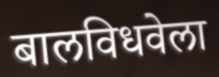
बालविधवेला